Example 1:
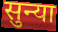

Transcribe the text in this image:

सुन्या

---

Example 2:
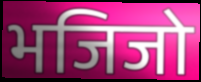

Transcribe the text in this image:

भजिजो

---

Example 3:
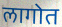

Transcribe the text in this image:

लागोत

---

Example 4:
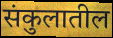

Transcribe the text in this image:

संकुलातील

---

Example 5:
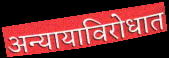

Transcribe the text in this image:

अन्यायाविरोधात